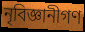
নৃবিজ্ঞানীগণ